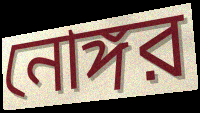
নোঙ্গর